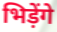
भिड़ेंगे